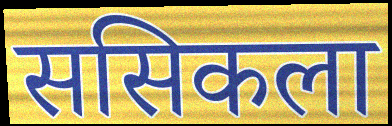
ससिकला